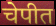
चेपीत